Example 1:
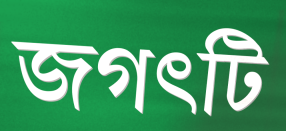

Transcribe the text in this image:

জগৎটি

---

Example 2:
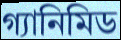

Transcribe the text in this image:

গ্যানিমিড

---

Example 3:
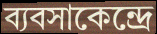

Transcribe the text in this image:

ব্যবসাকেন্দ্রে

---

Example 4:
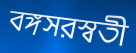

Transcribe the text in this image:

বঙ্গসরস্বতী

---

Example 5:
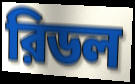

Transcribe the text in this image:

রিডল